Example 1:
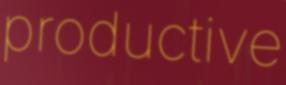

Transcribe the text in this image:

productive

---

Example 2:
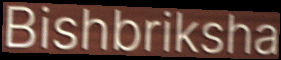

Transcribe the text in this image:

Bishbriksha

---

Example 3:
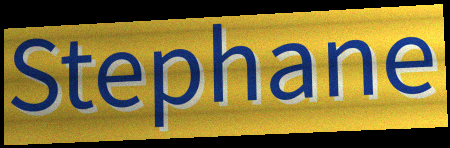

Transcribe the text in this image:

Stephane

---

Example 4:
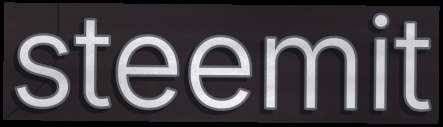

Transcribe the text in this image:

steemit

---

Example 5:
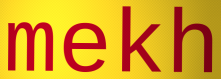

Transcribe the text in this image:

mekh